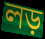
লড়